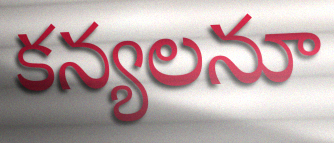
కన్యలనూ